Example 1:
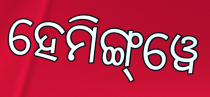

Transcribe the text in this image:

ହେମିଙ୍ଗ୍‌ୱେ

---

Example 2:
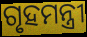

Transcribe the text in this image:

ଗୃହମନ୍ତ୍ରୀ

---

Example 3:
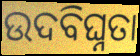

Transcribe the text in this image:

ଉଦବିଘ୍ନତା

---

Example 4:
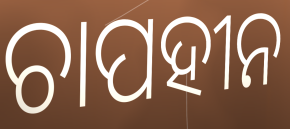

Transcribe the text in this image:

ଚାପହୀନ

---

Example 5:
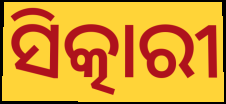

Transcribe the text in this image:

ସିତ୍କାରୀ